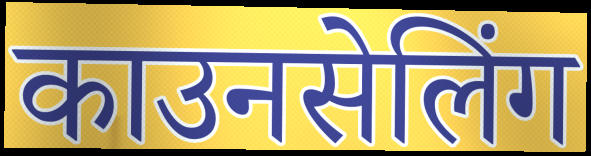
काउनसेलिंग